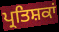
ਪ੍ਰਤਿਸ਼ਕਾਂ